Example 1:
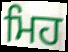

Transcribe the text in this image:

ਮਿਹ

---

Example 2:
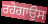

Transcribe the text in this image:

ਰਹੇਗਾਉਸ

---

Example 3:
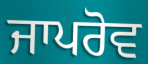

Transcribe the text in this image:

ਜਾਪਰੋਵ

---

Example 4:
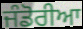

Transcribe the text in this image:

ਜੰਡੋਰੀਆ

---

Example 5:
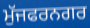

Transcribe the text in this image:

ਮੁੱਜਫਰਨਗਰ